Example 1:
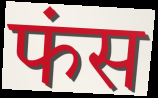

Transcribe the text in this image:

फंस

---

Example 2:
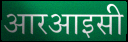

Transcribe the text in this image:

आरआइसी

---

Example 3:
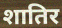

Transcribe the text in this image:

शातिर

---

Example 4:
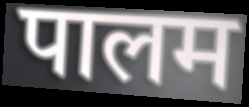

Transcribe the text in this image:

पालम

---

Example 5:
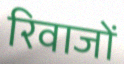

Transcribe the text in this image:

रिवाजों